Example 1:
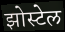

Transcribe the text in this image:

झोस्टेल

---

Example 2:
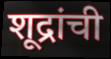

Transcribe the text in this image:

शूद्रांची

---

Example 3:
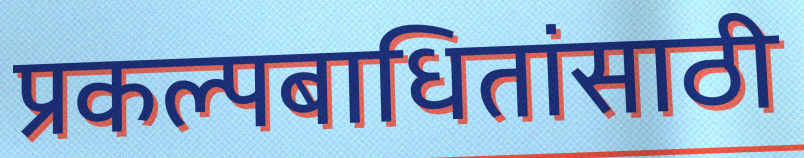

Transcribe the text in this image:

प्रकल्पबाधितांसाठी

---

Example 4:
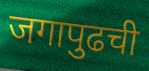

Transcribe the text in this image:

जगापुढची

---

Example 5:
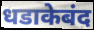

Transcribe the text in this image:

धडाकेबंद